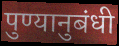
पुण्यानुबंधी